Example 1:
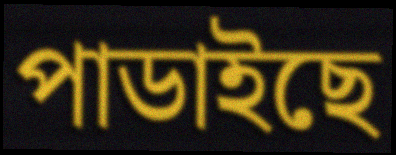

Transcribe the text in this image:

পাডাইছে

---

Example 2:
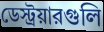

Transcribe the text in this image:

ডেস্ট্রয়ারগুলি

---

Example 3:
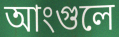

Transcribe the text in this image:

আংগুলে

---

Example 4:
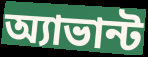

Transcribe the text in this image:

অ্যাভান্ট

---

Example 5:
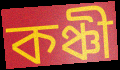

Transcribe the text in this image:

কঞ্চী